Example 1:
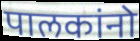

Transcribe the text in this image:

पालकांनो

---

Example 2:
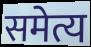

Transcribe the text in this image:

समेत्य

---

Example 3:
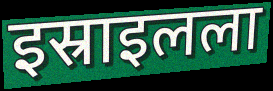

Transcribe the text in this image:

इस्राइलला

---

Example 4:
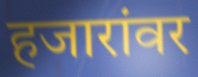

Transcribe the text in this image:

हजारांवर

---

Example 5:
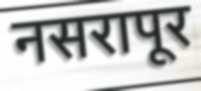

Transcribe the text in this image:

नसरापूर